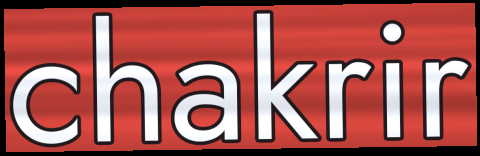
chakrir